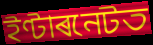
ইণ্টাৰনেটত